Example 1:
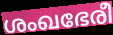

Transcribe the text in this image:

ശംഖഭേരീ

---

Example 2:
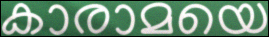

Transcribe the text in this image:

കാരാമയെ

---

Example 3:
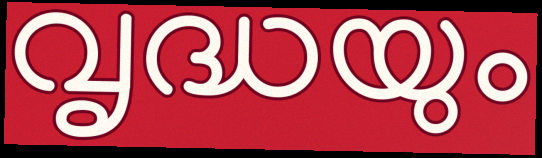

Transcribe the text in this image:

വൃദ്ധയും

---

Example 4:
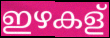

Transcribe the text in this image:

ഇഴകള്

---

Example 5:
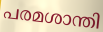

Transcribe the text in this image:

പരമശാന്തി